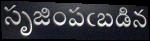
సృజింపఁబడిన